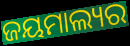
ଜୟମାଲ୍ୟର